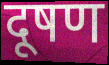
दूषण